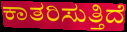
ಕಾತರಿಸುತ್ತಿದೆ